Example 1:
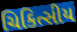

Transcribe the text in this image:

ચિકિત્સીય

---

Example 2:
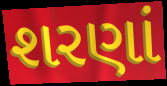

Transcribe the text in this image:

શરણાં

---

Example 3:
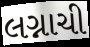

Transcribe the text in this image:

લગ્નાચી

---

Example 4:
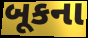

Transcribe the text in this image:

બૂકના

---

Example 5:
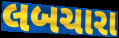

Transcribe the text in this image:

લબચારા